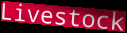
Livestock